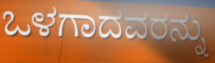
ಒಳಗಾದವರನ್ನು